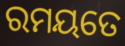
ରମୟତେ